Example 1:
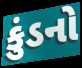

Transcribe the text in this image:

કુંડનો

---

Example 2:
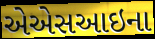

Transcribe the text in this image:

એએસઆઇના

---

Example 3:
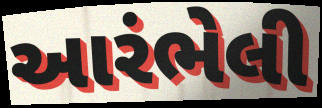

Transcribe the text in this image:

આરંભેલી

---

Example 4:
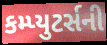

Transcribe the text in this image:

કમ્પ્યુટર્સની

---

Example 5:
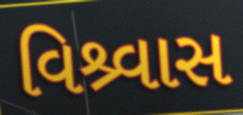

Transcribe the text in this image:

વિશ્ર્વાસ